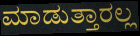
ಮಾಡುತ್ತಾರಲ್ಲ